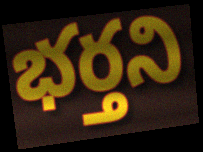
భర్తని